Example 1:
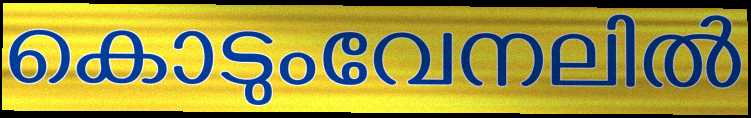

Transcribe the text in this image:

കൊടുംവേനലിൽ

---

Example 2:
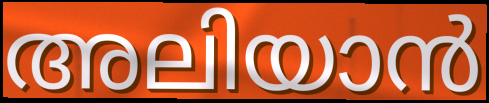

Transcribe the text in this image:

അലിയാൻ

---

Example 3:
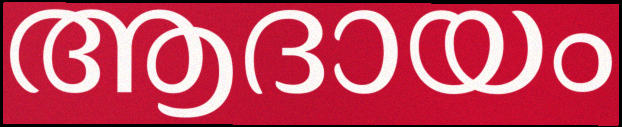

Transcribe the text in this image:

ആദായം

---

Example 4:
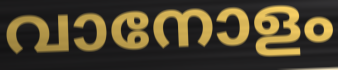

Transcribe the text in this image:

വാനോളം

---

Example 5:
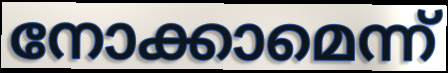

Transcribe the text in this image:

നോക്കാമെന്ന്